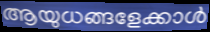
ആയുധങ്ങളേക്കാൾ